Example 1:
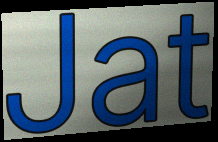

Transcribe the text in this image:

Jat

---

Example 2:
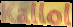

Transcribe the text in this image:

Kallol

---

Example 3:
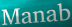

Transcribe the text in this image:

Manab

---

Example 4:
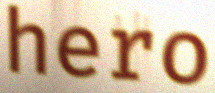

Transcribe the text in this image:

hero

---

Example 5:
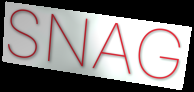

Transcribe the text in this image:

SNAG